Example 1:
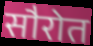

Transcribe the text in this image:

सौरोत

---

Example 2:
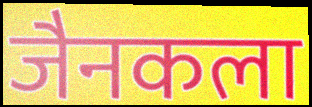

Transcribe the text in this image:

जैनकला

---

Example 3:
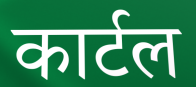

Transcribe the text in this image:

कार्टल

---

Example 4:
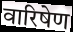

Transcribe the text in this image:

वारिषेण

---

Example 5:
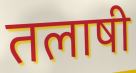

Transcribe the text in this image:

तलाषी